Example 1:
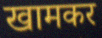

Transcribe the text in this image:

खामकर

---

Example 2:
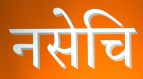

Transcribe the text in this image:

नसेचि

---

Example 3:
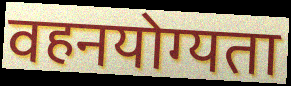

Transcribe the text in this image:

वहनयोग्यता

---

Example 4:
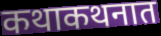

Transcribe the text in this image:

कथाकथनात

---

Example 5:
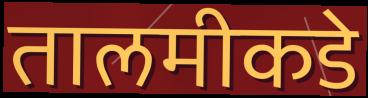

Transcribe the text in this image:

तालमीकडे